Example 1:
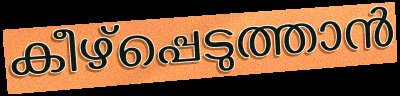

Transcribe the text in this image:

കീഴ്പ്പെടുത്താൻ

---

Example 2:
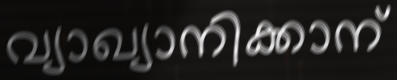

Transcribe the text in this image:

വ്യാഖ്യാനിക്കാന്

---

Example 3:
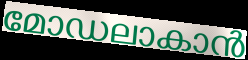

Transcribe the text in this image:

മോഡലാകാൻ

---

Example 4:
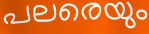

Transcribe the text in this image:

പലരെയും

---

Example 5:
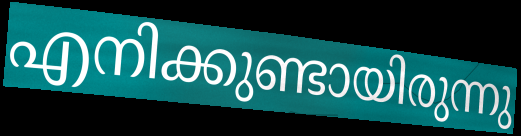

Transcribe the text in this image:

എനിക്കുണ്ടായിരുന്നു